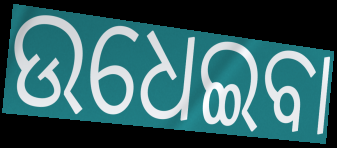
ଉଧେଇବା